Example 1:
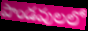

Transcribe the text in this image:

పాండవులలో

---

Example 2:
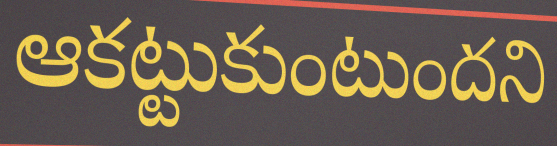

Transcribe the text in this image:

ఆకట్టుకుంటుందని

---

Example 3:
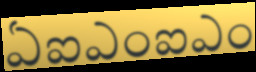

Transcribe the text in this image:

ఏఐఎంఐఎం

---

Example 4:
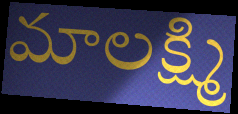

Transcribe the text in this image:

మాలక్ష్మి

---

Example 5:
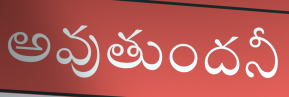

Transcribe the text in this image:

అవుతుందనీ